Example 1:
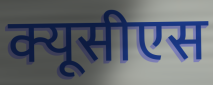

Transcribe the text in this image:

क्यूसीएस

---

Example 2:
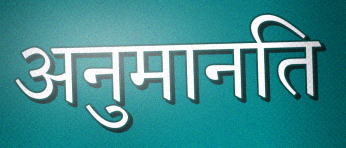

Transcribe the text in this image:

अनुमानति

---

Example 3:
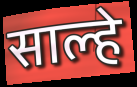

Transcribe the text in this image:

साल्हे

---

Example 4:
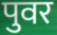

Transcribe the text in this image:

पुवर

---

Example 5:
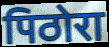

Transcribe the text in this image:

पिठोरा